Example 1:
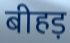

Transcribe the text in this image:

बीहड़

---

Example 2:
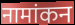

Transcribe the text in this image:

नामांकन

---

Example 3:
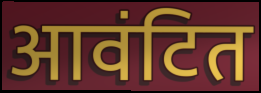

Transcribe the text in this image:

आवंटित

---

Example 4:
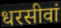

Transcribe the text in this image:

धरसीवां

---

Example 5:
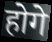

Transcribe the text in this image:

होगे